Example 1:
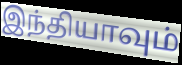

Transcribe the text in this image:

இந்தியாவும்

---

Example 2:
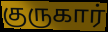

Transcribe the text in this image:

குருகார்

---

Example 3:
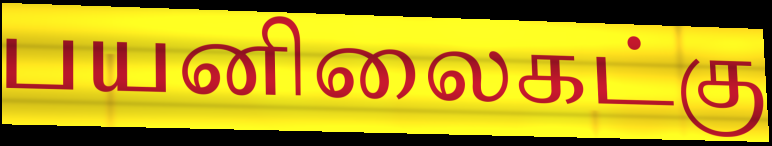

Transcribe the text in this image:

பயனிலைகட்கு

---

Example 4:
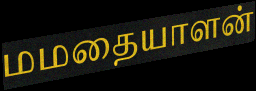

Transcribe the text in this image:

மமதையாளன்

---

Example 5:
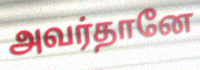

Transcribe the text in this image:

அவர்தானே